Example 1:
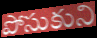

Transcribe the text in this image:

పోసుకుని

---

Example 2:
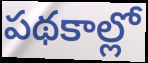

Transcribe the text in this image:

పథకాల్లో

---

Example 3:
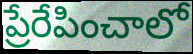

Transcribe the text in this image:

ప్రేరేపించాలో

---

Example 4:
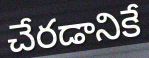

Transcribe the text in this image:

చేరడానికే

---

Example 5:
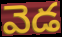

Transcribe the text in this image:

వెడ